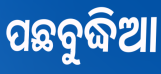
ପଛବୁଦ୍ଧିଆ